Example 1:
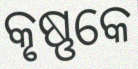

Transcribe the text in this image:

କୃଷ୍ଣକେ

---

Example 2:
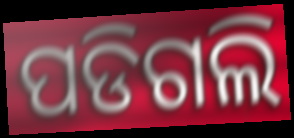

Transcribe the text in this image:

ପଡିଗଲି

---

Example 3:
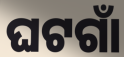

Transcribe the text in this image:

ଘଟଗାଁ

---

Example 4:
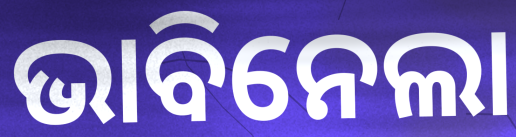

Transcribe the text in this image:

ଭାବିନେଲା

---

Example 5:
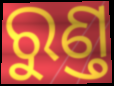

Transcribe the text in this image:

ରୁଣ୍ତ